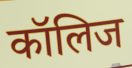
कॉलिज